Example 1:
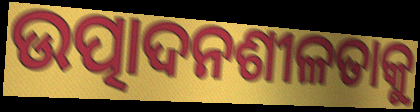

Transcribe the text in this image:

ଉତ୍ପାଦନଶୀଳତାକୁ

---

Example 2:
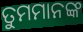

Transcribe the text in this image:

ତୁମମାନଙ୍କ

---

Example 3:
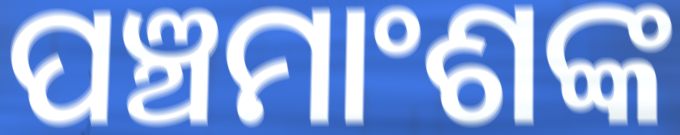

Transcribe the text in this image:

ପଞ୍ଚମାଂଶଙ୍କ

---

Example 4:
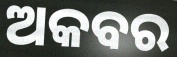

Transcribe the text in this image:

ଅକବର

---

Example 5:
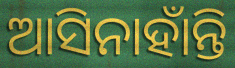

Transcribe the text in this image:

ଆସିନାହାଁନ୍ତି